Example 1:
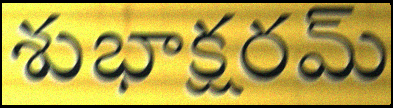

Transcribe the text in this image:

శుభాక్షరమ్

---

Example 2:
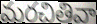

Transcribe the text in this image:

మరచితివా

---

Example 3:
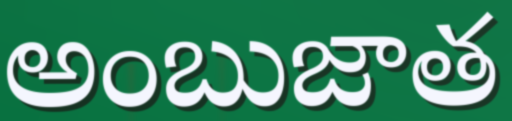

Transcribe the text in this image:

అంబుజాత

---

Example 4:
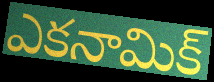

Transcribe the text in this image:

ఎకనామిక్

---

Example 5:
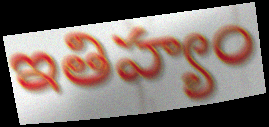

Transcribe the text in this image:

ఇతిహ్యం